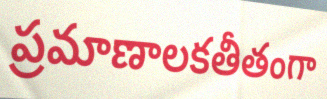
ప్రమాణాలకతీతంగా